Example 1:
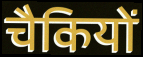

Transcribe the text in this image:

चैकियों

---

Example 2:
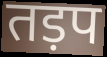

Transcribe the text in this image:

तड़प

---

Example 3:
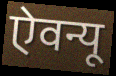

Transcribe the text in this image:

ऐवन्यू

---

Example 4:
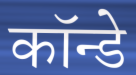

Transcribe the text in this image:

कॉन्डे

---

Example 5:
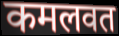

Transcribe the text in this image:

कमलवत